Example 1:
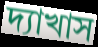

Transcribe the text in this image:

দ্যাখাস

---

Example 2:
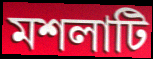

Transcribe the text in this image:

মশলাটি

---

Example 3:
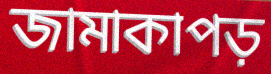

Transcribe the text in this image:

জামাকাপড়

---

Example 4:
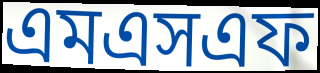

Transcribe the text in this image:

এমএসএফ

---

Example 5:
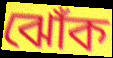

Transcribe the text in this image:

ঝোঁক